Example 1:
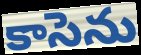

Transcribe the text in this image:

కాసెను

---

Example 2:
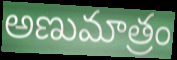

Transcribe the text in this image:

అణుమాత్రం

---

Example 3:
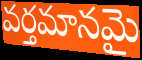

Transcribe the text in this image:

వర్తమానమై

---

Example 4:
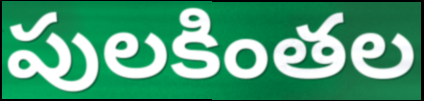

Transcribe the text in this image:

పులకింతల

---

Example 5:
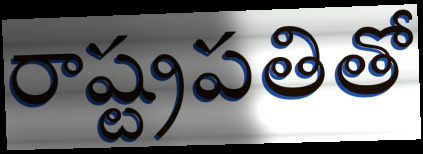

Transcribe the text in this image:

రాష్ట్రపతితో